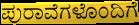
ಪುರಾವೆಗಳೊಂದಿಗೆ